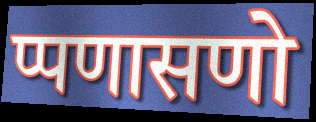
प्पणासणो